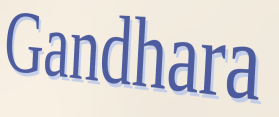
Gandhara